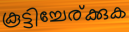
കൂട്ടിച്ചേര്ക്കുക